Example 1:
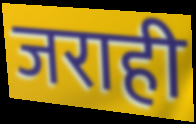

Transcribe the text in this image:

जराही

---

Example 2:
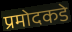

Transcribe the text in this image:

प्रमोदकडे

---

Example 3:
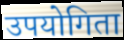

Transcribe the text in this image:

उपयोगिता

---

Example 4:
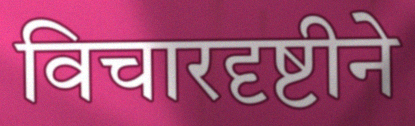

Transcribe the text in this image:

विचारदृष्टीने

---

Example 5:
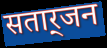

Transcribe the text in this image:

सतार्जन